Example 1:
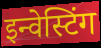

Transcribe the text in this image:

इन्वेस्टिंग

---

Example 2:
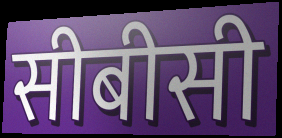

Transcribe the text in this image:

सीबीसी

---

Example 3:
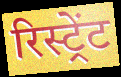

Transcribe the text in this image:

रिस्ट्रेंट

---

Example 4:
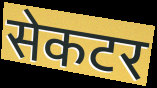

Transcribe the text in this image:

सेकटर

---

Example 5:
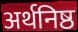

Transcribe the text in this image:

अर्थनिष्ठ